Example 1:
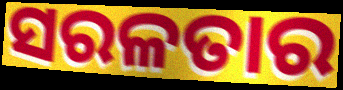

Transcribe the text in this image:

ସରଳତାର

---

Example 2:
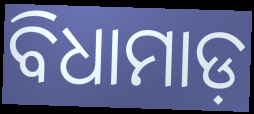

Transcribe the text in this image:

ବିଧାମାଡ଼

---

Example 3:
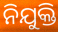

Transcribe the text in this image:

ନିଯୁକ୍ତି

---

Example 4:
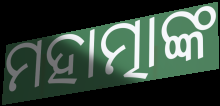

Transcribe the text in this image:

ମହାତ୍ମାଙ୍କ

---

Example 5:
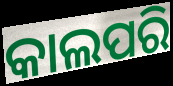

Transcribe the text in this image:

କାଲପରି